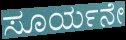
ಸೂರ್ಯನೇ